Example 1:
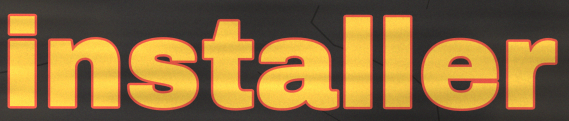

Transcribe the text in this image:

installer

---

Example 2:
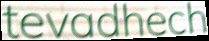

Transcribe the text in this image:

tevadhech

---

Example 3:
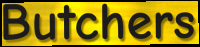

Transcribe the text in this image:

Butchers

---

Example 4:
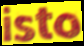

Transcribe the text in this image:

isto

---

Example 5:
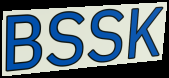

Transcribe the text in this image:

BSSK